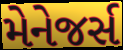
મેનેજર્સ